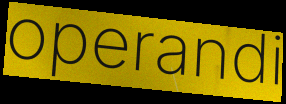
operandi